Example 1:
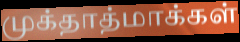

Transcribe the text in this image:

முக்தாத்மாக்கள்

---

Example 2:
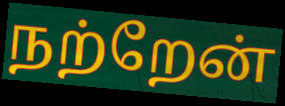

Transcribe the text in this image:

நற்றேன்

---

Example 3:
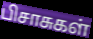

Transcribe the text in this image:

பிசாசுகள்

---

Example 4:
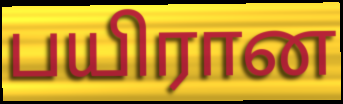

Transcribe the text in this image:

பயிரான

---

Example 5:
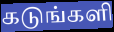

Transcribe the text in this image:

கடுங்களி